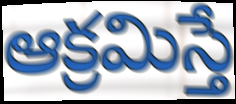
ఆక్రమిస్తే